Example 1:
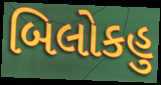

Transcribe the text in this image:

બિલોકહુ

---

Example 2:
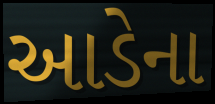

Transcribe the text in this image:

આડેના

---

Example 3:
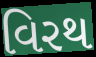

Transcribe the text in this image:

વિરથ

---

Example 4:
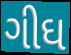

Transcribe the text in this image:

ગીઘ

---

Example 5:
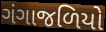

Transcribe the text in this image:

ગંગાજળિયો